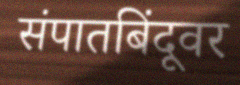
संपातबिंदूवर